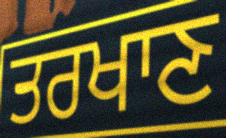
ਤਰਖਾਣ